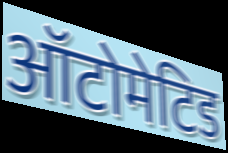
ऑटोमेटिड